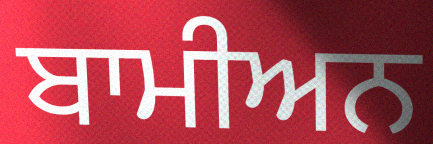
ਬਾਮੀਅਨ